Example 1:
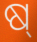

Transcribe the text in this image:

ଷ୍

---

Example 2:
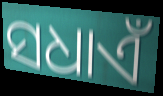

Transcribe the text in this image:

ସଧାଏଁ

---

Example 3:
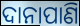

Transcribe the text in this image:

ଦାନାପାଣି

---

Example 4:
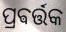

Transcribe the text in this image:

ପ୍ରଵର୍ତ୍ତକ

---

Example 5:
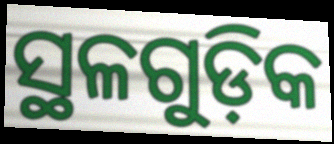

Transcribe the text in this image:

ସ୍ଥଳଗୁଡ଼ିକ